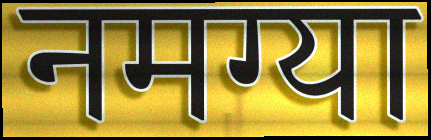
नमग्या